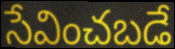
సేవించబడే